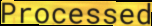
Processed